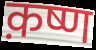
क़ष्ण